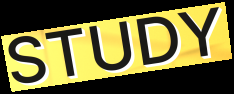
STUDY